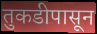
तुकडीपासून